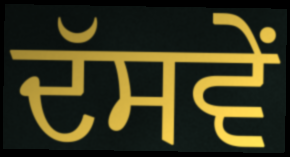
ਦੱਸਵੇਂ